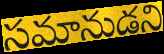
సమానుడని